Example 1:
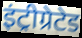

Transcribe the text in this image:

इंट्रीग्रेटेड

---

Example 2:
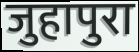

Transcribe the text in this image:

जुहापुरा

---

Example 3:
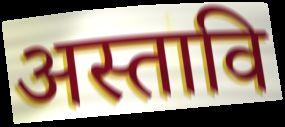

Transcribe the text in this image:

अस्तावि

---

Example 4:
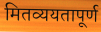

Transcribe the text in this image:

मितव्ययतापूर्ण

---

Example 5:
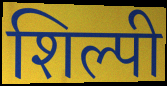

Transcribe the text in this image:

शिल्पी